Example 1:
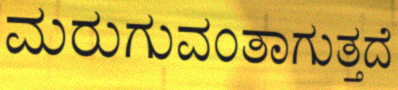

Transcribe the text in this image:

ಮರುಗುವಂತಾಗುತ್ತದೆ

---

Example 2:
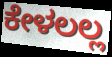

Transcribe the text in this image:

ಕೇಳಲಲ್ಲ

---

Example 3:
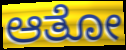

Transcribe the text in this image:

ಆತೋ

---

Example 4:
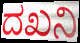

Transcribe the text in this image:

ದಖನಿ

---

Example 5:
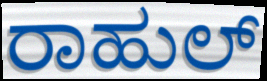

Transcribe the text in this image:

ರಾಹುಲ್